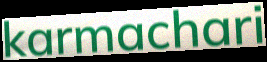
karmachari